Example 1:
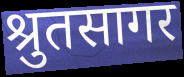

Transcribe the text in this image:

श्रुतसागर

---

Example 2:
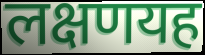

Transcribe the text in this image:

लक्षणयह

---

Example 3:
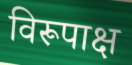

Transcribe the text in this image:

विरूपाक्ष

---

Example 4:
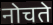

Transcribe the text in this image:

नोचते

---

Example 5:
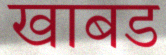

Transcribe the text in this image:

खाबड